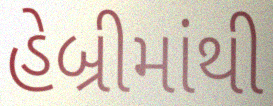
હેબ્રીમાંથી